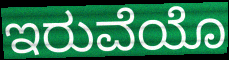
ಇರುವೆಯೊ